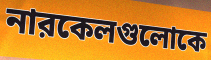
নারকেলগুলোকে